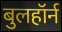
बुलहॉर्न